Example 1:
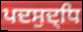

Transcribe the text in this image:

ਪਦਸੁਦ੍ਧਿ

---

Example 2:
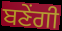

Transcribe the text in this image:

ਬਣੇਂਗੀ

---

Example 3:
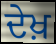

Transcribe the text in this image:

ਦੇਖ਼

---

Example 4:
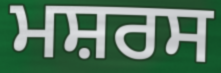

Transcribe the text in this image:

ਮਸ਼ਰਸ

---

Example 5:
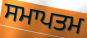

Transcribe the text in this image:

ਸਮਾਪਤਮ